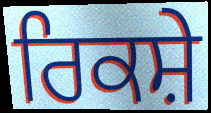
ਰਿਕਸ਼ੇ